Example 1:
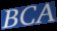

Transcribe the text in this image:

BCA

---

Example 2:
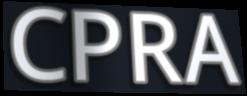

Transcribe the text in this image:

CPRA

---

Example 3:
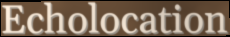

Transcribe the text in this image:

Echolocation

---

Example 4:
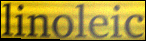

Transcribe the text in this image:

linoleic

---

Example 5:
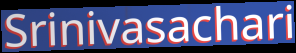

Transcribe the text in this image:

Srinivasachari